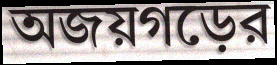
অজয়গড়ের